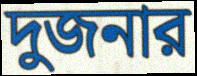
দুজনার